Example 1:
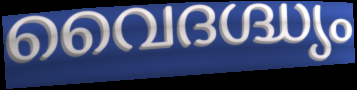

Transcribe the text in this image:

വൈദഗ്ദ്ധ്യം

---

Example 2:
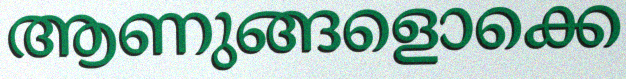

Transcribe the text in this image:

ആണുങ്ങളൊക്കെ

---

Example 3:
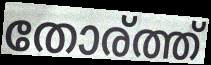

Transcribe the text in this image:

തോര്ത്ത്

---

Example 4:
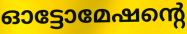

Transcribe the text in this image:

ഓട്ടോമേഷന്റെ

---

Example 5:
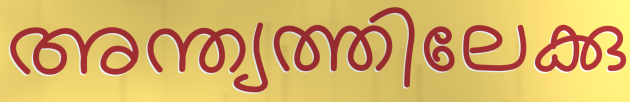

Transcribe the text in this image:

അന്ത്യത്തിലേക്കു